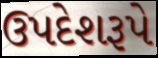
ઉપદેશરૂપે